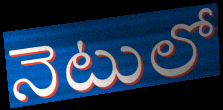
నెటులో